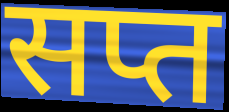
सप्त